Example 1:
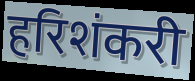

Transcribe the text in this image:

हरिशंकरी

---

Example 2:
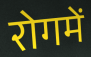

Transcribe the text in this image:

रोगमें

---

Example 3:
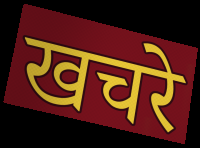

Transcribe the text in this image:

खचरे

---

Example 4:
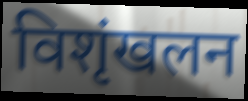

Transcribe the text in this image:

विशृंखलन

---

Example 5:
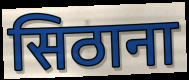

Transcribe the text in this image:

सिठाना